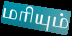
மரியும்